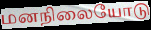
மனநிலையோடு